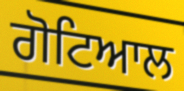
ਗੋਟਿਆਲ